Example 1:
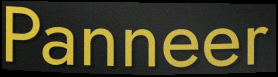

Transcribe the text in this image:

Panneer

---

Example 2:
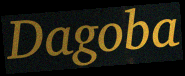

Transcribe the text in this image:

Dagoba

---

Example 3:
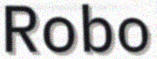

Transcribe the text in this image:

Robo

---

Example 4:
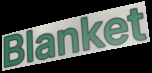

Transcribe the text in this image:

Blanket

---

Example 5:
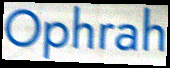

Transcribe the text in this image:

Ophrah